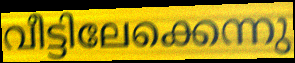
വീട്ടിലേക്കെന്നു